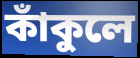
কাঁকুলে